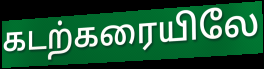
கடற்கரையிலே